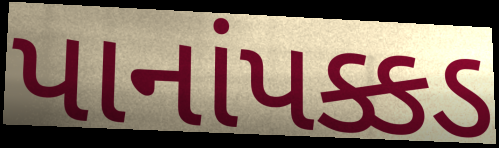
પાનાંપક્કડ